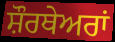
ਸ਼ੌਰਥੇਅਰਾਂ